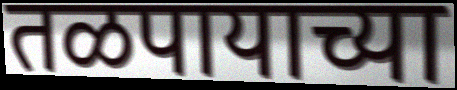
तळपायाच्या